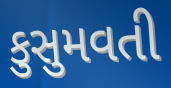
કુસુમવતી